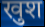
खुश